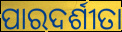
ପାରଦର୍ଶୀତା